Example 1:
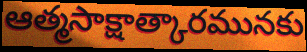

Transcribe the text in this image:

ఆత్మసాక్షాత్కారమునకు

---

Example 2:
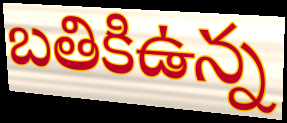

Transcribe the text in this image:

బతికిఉన్న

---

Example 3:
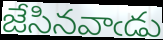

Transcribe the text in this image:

జేసినవాఁడు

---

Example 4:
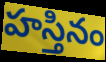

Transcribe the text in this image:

హస్తినం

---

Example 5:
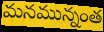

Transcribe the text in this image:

మనమున్నంత